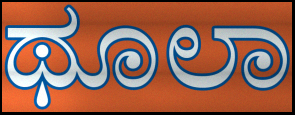
ಥೂಲಾ